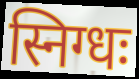
स्निग्धः